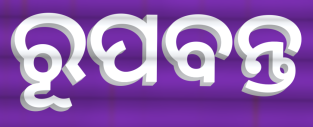
ରୂପବନ୍ତ